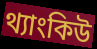
থ্যাংকিউ